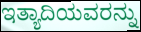
ಇತ್ಯಾದಿಯವರನ್ನು